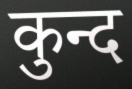
कुन्द